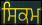
ਸਿਕਮ